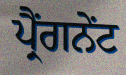
ਪ੍ਰੈਂਗਨੇਂਟ